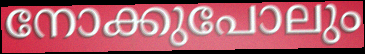
നോക്കുപോലും